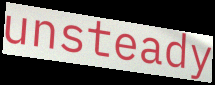
unsteady